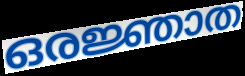
ഒരജ്ഞാത